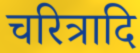
चरित्रादि